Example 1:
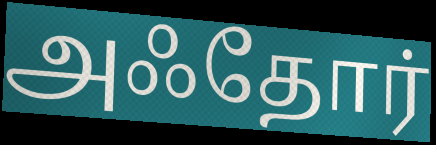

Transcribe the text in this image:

அஃதோர்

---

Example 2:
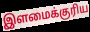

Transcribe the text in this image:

இளமைக்குரிய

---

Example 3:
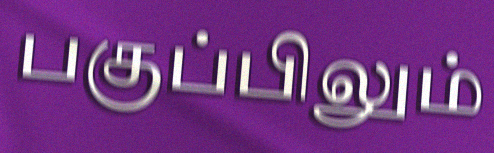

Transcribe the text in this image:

பகுப்பிலும்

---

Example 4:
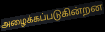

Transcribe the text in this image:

அழைக்கப்படுகின்றன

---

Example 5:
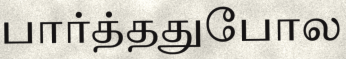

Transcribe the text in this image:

பார்த்ததுபோல